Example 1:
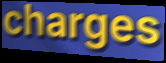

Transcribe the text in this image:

charges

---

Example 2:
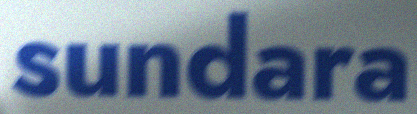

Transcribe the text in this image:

sundara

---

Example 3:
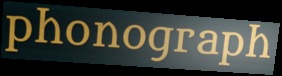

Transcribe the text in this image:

phonograph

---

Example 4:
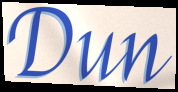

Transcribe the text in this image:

Dun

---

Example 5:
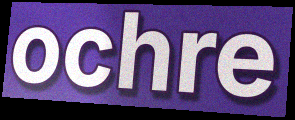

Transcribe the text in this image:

ochre